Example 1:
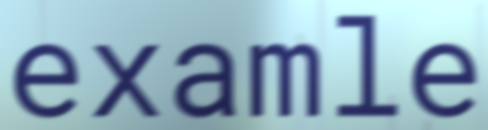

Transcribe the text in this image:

examle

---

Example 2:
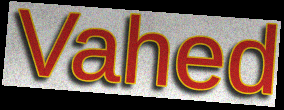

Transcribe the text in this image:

Vahed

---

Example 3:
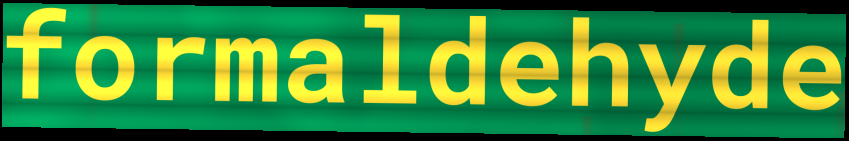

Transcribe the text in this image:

formaldehyde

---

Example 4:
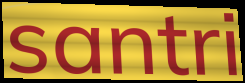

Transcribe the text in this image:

santri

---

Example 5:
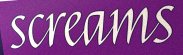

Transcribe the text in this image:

screams